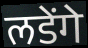
लडेंगे